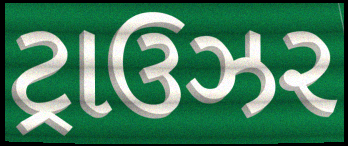
ટ્રાઉઝર